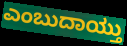
ಎಂಬುದಾಯ್ತು